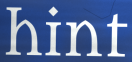
hint